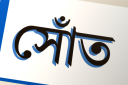
সোঁত